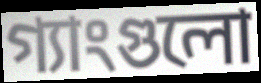
গ্যাংগুলো